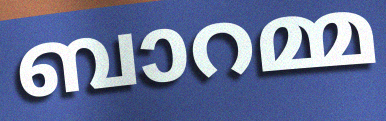
ബാറമ്മ